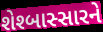
શેશ્બાસ્સારને